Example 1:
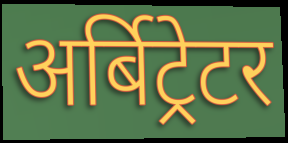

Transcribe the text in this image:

अर्बिट्रेटर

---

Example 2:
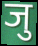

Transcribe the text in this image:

जु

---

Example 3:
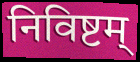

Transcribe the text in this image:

निविष्टम्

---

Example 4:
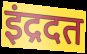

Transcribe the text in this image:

इंद्रदत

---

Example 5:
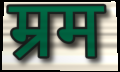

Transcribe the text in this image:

म्रम